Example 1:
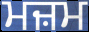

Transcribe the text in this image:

ਮਜ਼ਮ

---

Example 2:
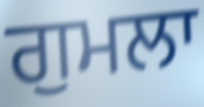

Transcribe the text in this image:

ਗੁਮਲਾ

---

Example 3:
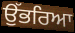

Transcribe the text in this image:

ਉੱਭਰਿਆ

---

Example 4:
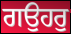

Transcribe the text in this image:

ਗਉਹਰੁ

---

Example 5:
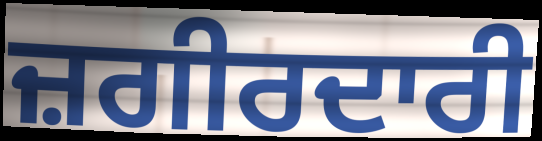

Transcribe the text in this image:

ਜ਼ਗੀਰਦਾਰੀ